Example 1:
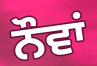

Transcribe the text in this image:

ਨੌਵਾਂ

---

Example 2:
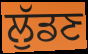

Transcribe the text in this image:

ਲੁੱਡਣ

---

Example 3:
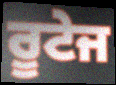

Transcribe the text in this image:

ਰੂਟੇਜ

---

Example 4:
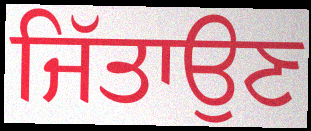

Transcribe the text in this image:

ਜਿੱਤਾਉਣ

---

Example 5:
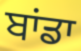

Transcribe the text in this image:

ਬਾਂਡਾ